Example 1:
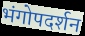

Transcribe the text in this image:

भंगोपदर्शन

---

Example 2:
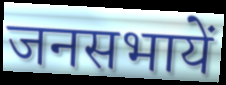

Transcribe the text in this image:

जनसभायें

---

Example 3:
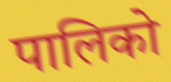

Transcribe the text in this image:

पालिको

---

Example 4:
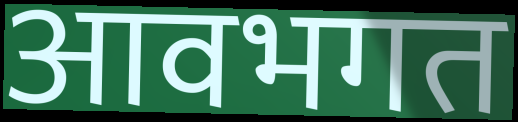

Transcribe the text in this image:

आवभगत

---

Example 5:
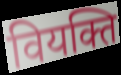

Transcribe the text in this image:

वियक्ति